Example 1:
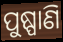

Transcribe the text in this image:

ପୁଷ୍ପାଣି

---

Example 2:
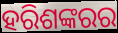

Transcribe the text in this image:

ହରିଶଙ୍କରର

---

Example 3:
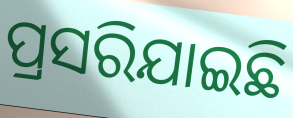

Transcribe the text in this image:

ପ୍ରସରିଯାଇଛି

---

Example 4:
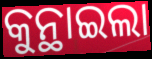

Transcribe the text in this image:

କୁନ୍ଥାଇଲା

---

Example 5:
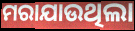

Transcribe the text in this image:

ମରାଯାଉଥିଲା